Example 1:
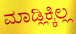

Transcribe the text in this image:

ಮಾಡ್ಲಿಕ್ಕಿಲ್ಲ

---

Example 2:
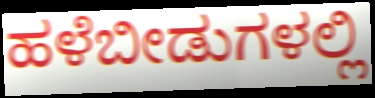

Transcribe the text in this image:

ಹಳೆಬೀಡುಗಳಲ್ಲಿ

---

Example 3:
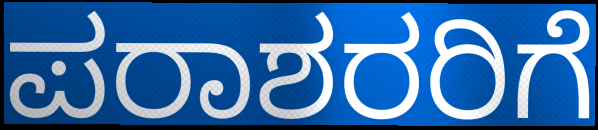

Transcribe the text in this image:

ಪರಾಶರರಿಗೆ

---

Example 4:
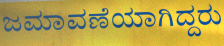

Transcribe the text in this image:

ಜಮಾವಣೆಯಾಗಿದ್ದರು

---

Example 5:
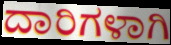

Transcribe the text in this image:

ದಾರಿಗಳಾಗಿ